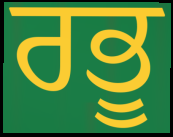
ਰਭੂ